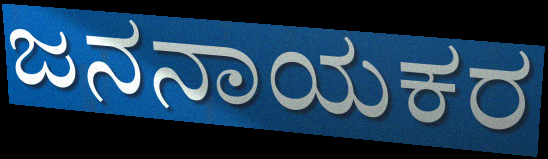
ಜನನಾಯಕರ